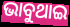
ଭାବୁଥାଇ